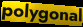
polygonal